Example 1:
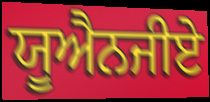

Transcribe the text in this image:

ਯੂਐਨਜੀਏ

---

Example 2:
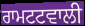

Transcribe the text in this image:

ਰਾਮਟਟਵਾਲੀ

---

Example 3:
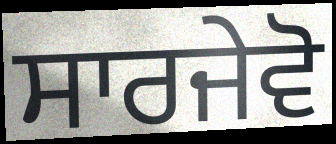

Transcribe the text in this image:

ਸਾਰਜੇਵੋ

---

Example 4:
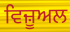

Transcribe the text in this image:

ਵਿਜ਼ੂਅਲ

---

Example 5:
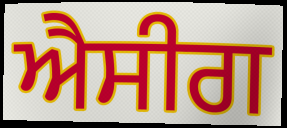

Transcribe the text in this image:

ਐਸੀਗ